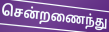
சென்றணைந்து